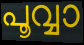
പൂവ്വാ